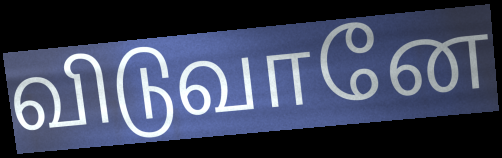
விடுவானே